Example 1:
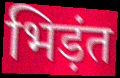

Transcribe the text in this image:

भिड़ंत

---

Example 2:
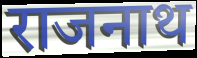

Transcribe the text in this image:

राजनाथ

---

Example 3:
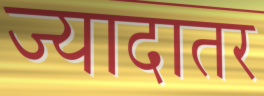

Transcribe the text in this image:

ज्यादातर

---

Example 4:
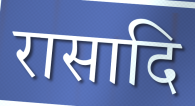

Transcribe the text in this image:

रासादि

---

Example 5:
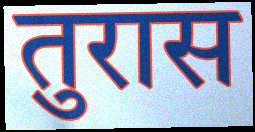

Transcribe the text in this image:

तुरास